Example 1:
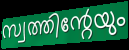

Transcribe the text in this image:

സ്വത്തിന്റേയും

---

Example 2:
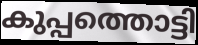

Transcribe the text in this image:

കുപ്പത്തൊട്ടി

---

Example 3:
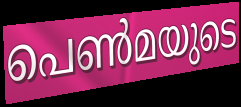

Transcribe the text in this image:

പെൺമയുടെ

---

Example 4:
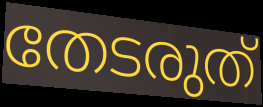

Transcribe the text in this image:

തേടരുത്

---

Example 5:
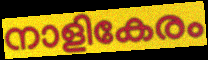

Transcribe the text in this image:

നാളികേരം